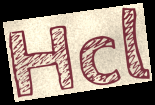
Hcl